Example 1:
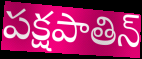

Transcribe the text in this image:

పక్షపాతిన్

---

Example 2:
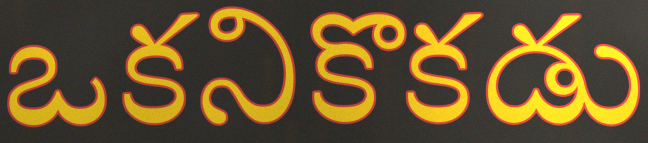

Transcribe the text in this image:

ఒకనికొకడు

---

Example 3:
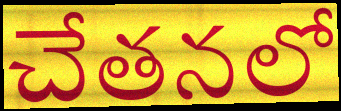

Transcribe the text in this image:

చేతనలో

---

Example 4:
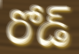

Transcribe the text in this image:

రోడ్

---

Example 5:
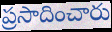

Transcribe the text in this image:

ప్రసాదించారు